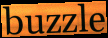
buzzle